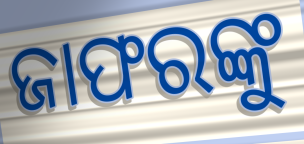
ଜାଫରଙ୍କୁ